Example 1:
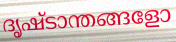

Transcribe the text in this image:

ദൃഷ്ടാന്തങ്ങളോ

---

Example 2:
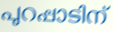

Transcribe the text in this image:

പുറപ്പാടിന്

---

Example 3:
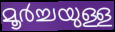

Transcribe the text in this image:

മൂർച്ചയുള്ള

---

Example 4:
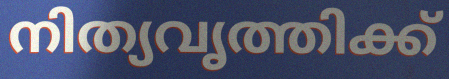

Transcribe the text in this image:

നിത്യവൃത്തിക്ക്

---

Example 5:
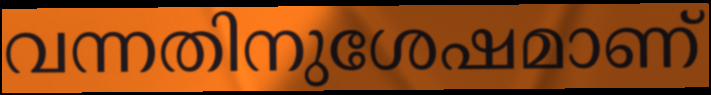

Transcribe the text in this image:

വന്നതിനുശേഷമാണ്